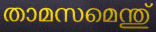
താമസമെന്തു്